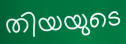
തിയയുടെ